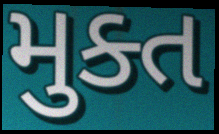
મુક્ત